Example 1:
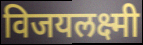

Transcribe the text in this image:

विजयलक्ष्मी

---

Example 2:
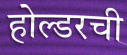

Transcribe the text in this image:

होल्डरची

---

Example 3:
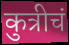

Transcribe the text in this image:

कुत्रीचं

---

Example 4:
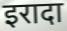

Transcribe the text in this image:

इरादा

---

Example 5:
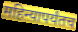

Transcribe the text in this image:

महिन्यापर्यंतच